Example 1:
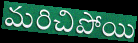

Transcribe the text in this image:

మరిచిపోయి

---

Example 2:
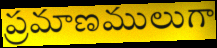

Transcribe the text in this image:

ప్రమాణములుగా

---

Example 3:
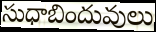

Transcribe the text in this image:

సుధాబిందువులు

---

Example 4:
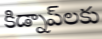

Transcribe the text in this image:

కిడ్నాప్‌లకు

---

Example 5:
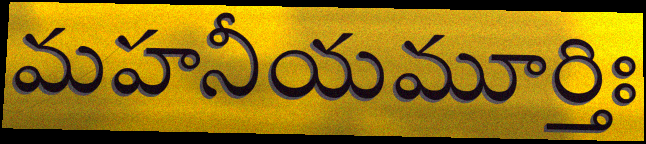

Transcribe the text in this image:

మహనీయమూర్తిః